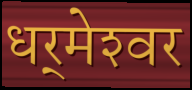
धर्मेश्वर